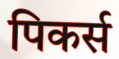
पिकर्स